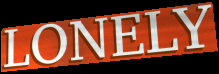
LONELY